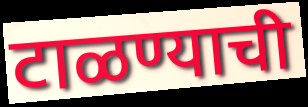
टाळण्याची